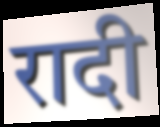
रादी